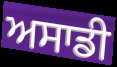
ਅਸਾਡੀ